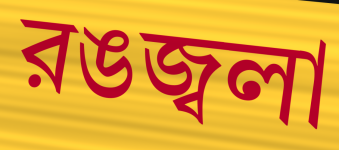
রঙজ্বলা